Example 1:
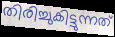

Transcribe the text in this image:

തിരിച്ചുകിട്ടുന്നത്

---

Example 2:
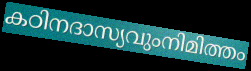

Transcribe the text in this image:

കഠിനദാസ്യവുംനിമിത്തം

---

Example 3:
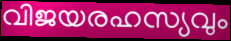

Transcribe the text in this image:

വിജയരഹസ്യവും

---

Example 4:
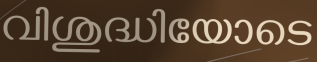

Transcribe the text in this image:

വിശുദ്ധിയോടെ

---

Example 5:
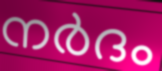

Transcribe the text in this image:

നർദം